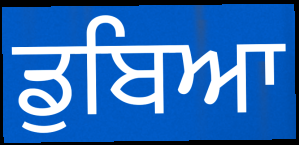
ਡੁਬਿਆ